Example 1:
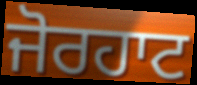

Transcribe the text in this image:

ਜੋਰਹਾਟ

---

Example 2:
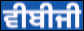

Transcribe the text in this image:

ਵੀਬੀਜੀ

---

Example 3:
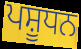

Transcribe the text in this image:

ਪਸ਼ੂਧਨ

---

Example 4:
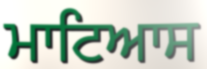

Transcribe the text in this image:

ਮਾਟਿਆਸ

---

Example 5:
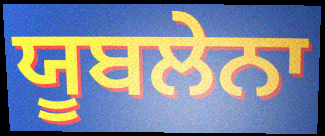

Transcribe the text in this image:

ਯੂਬਲੇਨਾ